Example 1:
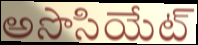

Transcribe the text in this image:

అసొసియేట్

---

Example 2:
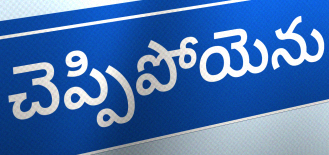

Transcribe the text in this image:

చెప్పిపోయెను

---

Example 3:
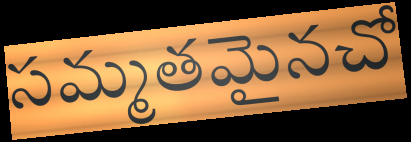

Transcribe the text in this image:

సమ్మతమైనచో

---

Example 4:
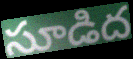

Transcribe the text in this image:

సూడిద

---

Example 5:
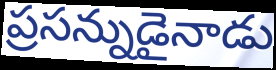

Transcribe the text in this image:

ప్రసన్నుడైనాడు